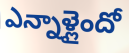
ఎన్నాళ్లైందో